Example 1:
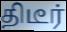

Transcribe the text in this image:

திடீர்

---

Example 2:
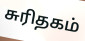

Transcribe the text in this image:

சுரிதகம்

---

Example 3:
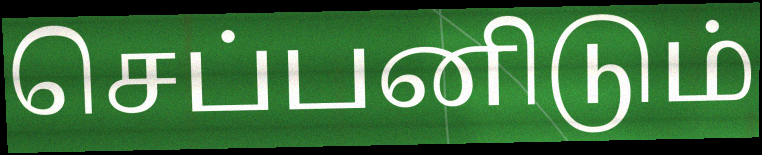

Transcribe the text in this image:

செப்பனிடும்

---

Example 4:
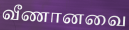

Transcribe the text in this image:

வீணானவை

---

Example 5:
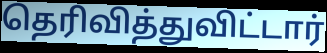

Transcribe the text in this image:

தெரிவித்துவிட்டார்